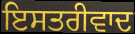
ਇਸਤਰੀਵਾਦ